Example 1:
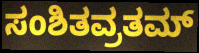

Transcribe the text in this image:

ಸಂಶಿತವ್ರತಮ್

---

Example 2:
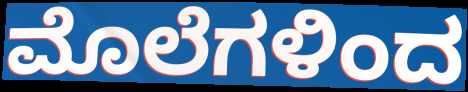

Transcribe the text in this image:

ಮೊಲೆಗಳಿಂದ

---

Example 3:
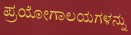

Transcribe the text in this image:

ಪ್ರಯೋಗಾಲಯಗಳನ್ನು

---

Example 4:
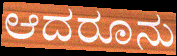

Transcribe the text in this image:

ಆದರೂನು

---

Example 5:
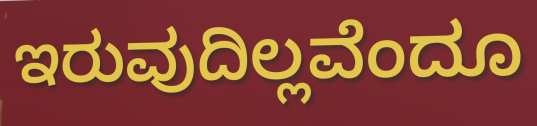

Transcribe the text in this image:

ಇರುವುದಿಲ್ಲವೆಂದೂ